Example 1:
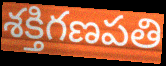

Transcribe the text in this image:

శక్తిగణపతి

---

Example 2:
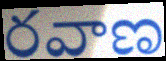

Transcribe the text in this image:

రవాణ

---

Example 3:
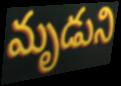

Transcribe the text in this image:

మృడుని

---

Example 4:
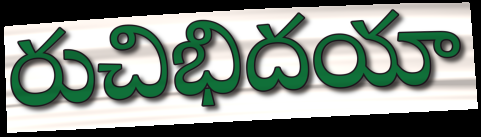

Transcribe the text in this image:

రుచిభిదయా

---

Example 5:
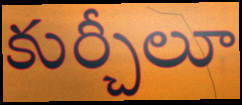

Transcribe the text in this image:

కుర్చీలూ